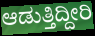
ಆಡುತ್ತಿದ್ದೀರಿ